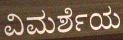
ವಿಮರ್ಶೆಯ